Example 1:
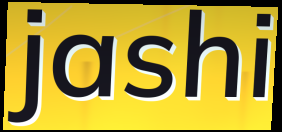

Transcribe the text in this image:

jashi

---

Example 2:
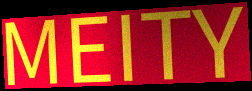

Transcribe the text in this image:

MEITY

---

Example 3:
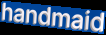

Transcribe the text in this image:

handmaid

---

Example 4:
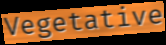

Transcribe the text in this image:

Vegetative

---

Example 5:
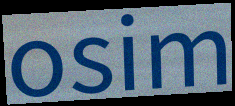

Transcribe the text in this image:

osim